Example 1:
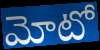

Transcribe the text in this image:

మోటో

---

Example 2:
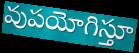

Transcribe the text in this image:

వుపయోగిస్తూ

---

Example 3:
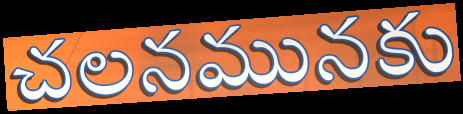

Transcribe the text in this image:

చలనమునకు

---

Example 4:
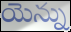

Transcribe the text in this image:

యెన్ను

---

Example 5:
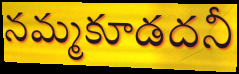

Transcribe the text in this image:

నమ్మకూడదనీ